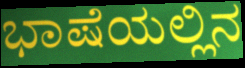
ಭಾಷೆಯಲ್ಲಿನ